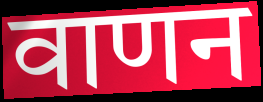
वाणन